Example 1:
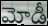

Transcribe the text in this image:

మోడీ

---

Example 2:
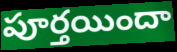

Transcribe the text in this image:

పూర్తయిందా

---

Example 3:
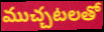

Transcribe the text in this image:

ముచ్చటలతో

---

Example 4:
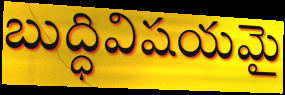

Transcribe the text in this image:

బుద్ధివిషయమై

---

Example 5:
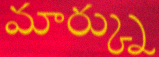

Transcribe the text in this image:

మార్క్ను